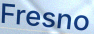
Fresno